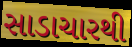
સાડાચારથી